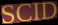
SCID